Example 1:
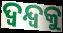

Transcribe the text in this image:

ଦ୍ୱନ୍ଦ୍ୱକୁ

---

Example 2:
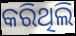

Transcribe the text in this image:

କରିଥିଲି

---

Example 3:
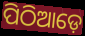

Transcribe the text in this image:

ପିଠିଆଡ଼େ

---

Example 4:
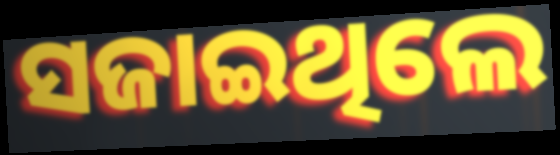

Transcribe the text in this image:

ସଜାଇଥିଲେ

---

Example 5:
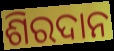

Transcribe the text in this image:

ଶିରଦାନ